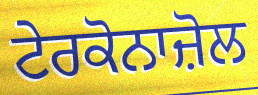
ਟੇਰਕੋਨਾਜ਼ੋਲ